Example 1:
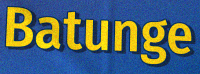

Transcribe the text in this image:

Batunge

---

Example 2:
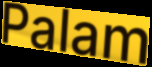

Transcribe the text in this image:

Palam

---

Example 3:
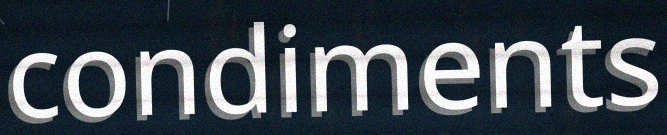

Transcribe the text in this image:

condiments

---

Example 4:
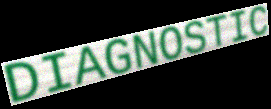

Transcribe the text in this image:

DIAGNOSTIC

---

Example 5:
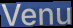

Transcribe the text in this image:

Venu